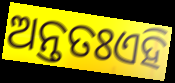
ଅନ୍ତତଃଏହି